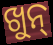
ଖୁନ୍